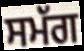
ਸਮੱਗ